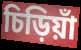
চিড়িয়াঁ